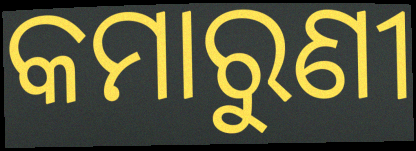
କମାରୁଣୀ